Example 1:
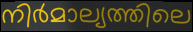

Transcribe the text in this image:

നിർമാല്യത്തിലെ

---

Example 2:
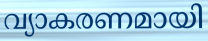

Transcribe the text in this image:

വ്യാകരണമായി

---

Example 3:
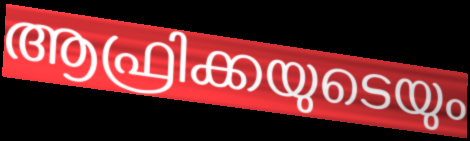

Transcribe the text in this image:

ആഫ്രിക്കയുടെയും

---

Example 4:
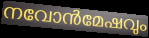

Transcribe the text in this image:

നവോൻമേഷവും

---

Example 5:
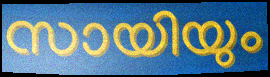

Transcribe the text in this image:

സായിയും